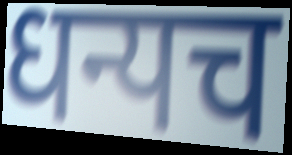
धन्यच